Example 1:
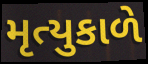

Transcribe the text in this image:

મૃત્યુકાળે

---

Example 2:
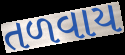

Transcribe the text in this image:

તળવાય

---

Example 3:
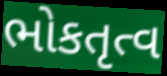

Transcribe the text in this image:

ભોકતૃત્વ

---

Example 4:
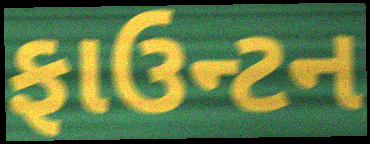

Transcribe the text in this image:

ફાઉન્ટન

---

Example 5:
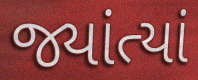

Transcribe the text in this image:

જ્યાંત્યાં